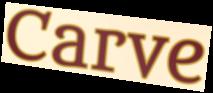
Carve